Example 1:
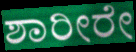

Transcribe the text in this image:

ಶಾರೀರೇ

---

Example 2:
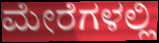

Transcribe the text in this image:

ಮೇರೆಗಳಲ್ಲಿ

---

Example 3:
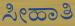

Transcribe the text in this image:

ಸೀಹಾತಿ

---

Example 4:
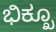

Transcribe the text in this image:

ಭಿಕ್ಖೂ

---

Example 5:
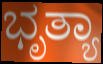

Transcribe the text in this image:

ಭೃತ್ಯಾ